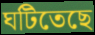
ঘটিতেছে